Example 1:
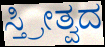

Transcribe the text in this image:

ಸ್ತ್ರೀತ್ವದ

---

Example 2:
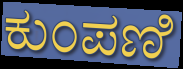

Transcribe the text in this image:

ಕುಂಪಣಿ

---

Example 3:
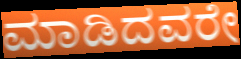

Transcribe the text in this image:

ಮಾಡಿದವರೇ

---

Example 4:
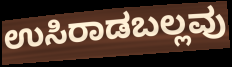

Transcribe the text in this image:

ಉಸಿರಾಡಬಲ್ಲವು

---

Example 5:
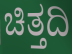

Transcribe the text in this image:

ಚಿತ್ತದಿ